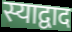
स्याद्वाद